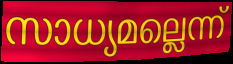
സാധ്യമല്ലെന്ന്